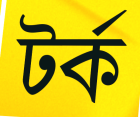
টর্ক